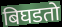
बिघडतो